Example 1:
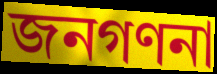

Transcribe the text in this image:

জনগণনা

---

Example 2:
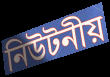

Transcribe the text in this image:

নিউটনীয়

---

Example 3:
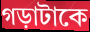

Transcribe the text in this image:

গড়াটাকে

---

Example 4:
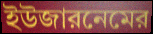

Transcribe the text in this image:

ইউজারনেমের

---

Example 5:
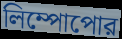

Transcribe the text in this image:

লিম্পোপোর